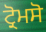
ਟ੍ਰੋਮਸੋ